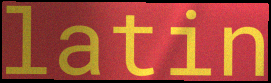
latin